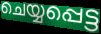
ചെയ്യപ്പെട്ട